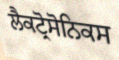
ਲੈਕਟ੍ਰੋਸੋਨਿਕਸ